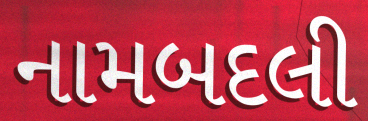
નામબદલી